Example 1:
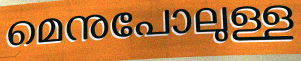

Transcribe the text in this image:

മെനുപോലുള്ള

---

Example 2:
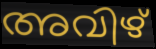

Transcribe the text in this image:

അവിഴ്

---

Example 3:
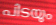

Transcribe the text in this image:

പിടയും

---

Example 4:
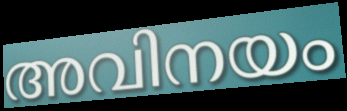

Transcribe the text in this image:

അവിനയം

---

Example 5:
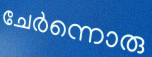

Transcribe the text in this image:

ചേർന്നൊരു